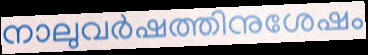
നാലുവർഷത്തിനുശേഷം